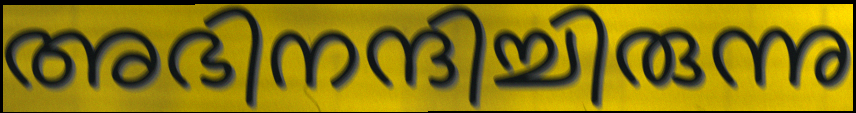
അഭിനന്ദിച്ചിരുന്നു